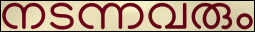
നടന്നവരും